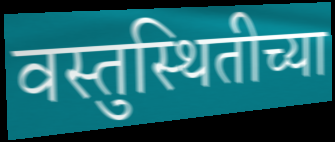
वस्तुस्थितीच्या